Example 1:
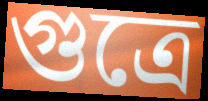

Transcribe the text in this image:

গুত্রে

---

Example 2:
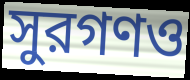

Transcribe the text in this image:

সুরগণও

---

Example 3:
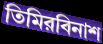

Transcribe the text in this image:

তিমিরবিনাশ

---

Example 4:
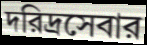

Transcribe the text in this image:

দরিদ্রসেবার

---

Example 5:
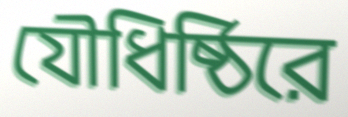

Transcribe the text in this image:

যৌধিষ্ঠিরে